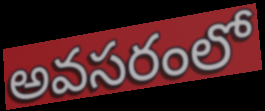
అవసరంలో